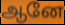
ஆனே